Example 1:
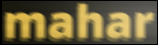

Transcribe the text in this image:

mahar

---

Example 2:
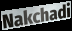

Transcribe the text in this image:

Nakchadi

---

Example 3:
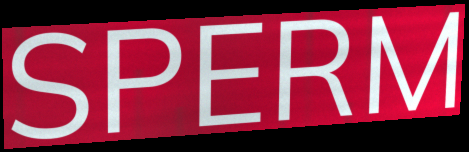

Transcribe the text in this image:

SPERM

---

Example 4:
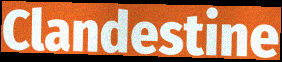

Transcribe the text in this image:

Clandestine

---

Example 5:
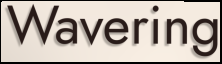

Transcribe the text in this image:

Wavering